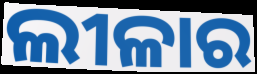
ଲୀଳାର